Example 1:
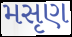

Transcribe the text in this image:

મસૃણ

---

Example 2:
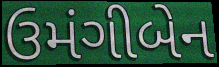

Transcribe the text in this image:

ઉમંગીબેન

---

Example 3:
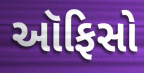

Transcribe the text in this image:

ઑફિસો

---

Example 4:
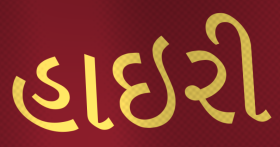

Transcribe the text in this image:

હાઇરી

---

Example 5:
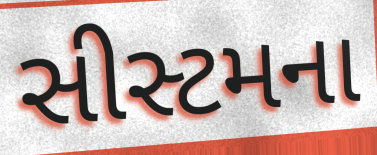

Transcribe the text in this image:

સીસ્ટમના